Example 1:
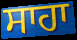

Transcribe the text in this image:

ਸਾਹਾ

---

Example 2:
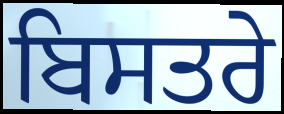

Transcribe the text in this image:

ਬਿਸਤਰੇ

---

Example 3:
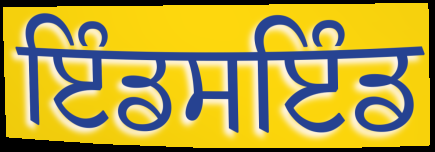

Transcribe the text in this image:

ਇੰਡਸਇੰਡ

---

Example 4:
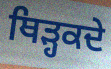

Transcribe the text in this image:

ਥਿੜ੍ਹਕਦੇ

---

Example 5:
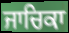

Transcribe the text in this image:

ਜਾਚਿਕਾ